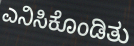
ಎನಿಸಿಕೊಂಡಿತು